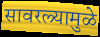
सावरल्यामुळे